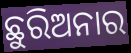
ଛୁରିଅନାର